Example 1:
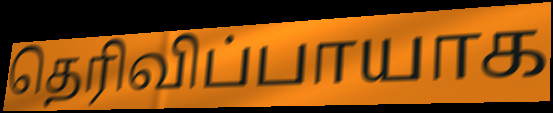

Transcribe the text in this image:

தெரிவிப்பாயாக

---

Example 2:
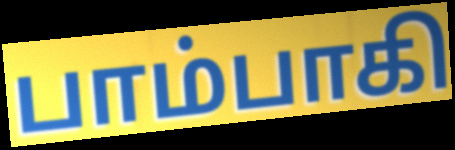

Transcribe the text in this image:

பாம்பாகி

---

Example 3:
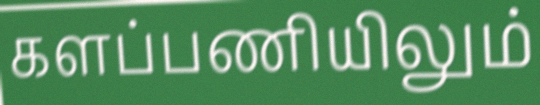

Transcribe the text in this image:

களப்பணியிலும்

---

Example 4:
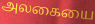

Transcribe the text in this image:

அலகையை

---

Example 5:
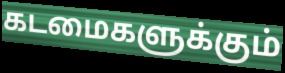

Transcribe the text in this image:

கடமைகளுக்கும்